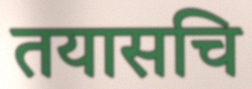
तयासचि